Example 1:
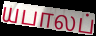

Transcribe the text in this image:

யபாலப்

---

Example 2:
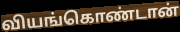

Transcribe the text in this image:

வியங்கொண்டான்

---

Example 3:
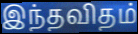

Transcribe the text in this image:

இந்தவிதம்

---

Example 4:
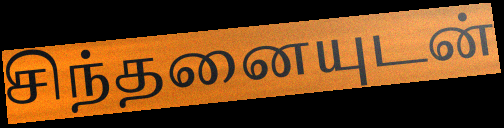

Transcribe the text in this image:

சிந்தனையுடன்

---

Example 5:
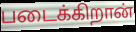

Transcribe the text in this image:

படைக்கிறான்